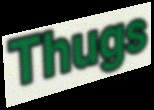
Thugs